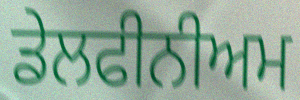
ਡੇਲਫੀਨੀਅਮ